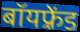
बॉयफ़्रेंड